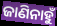
ଜାଣିନାହୁଁ